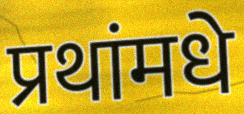
प्रथांमधे